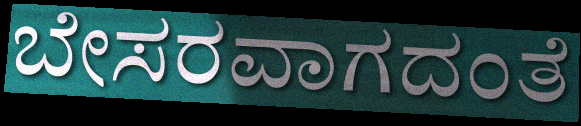
ಬೇಸರವಾಗದಂತೆ